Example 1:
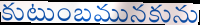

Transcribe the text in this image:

కుటుంబమునకును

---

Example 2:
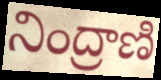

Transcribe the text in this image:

నింద్రాణి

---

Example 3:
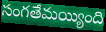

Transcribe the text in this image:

సంగతేమయ్యింది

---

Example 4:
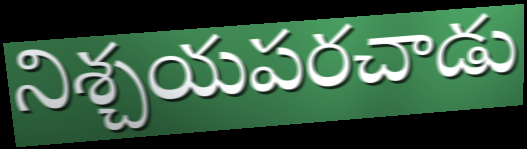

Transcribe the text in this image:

నిశ్చయపరచాడు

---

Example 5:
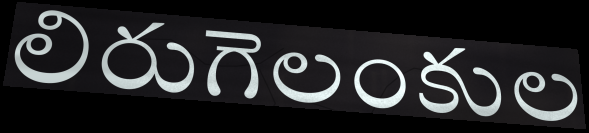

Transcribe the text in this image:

లిరుగెలంకుల